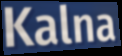
Kalna